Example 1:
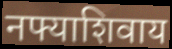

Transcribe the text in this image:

नफ्याशिवाय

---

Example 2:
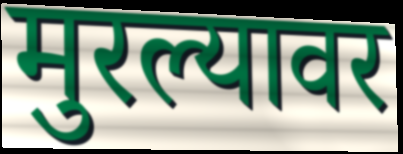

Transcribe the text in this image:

मुरल्यावर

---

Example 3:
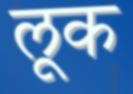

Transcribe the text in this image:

लूक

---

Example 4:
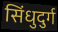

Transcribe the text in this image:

सिंधुदुर्ग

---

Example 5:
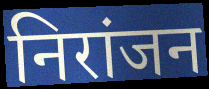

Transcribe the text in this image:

निरांजन